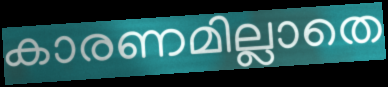
കാരണമില്ലാതെ